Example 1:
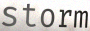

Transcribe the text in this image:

storm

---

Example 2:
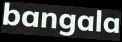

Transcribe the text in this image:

bangala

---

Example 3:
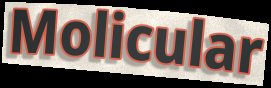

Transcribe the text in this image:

Molicular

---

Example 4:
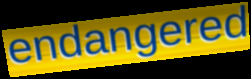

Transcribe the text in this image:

endangered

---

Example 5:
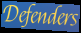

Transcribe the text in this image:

Defenders